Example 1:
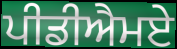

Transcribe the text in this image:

ਪੀਡੀਐਮਏ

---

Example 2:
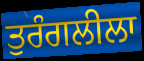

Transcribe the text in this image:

ਤੁਰੰਗਲੀਲਾ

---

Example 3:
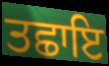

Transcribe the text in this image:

ਤਛਾਇ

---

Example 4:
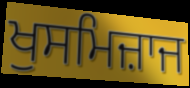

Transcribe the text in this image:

ਖੁਸਮਿਜ਼ਾਜ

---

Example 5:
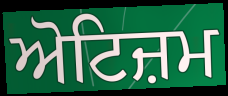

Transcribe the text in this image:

ਅੋਟਿਜ਼ਮ